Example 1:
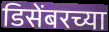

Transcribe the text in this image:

डिसेंबरच्या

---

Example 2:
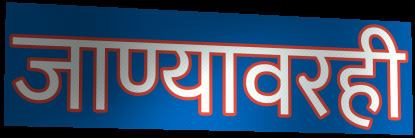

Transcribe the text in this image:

जाण्यावरही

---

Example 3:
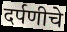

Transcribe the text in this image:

दर्पणीचे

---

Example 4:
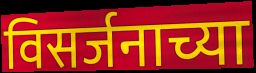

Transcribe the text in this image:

विसर्जनाच्या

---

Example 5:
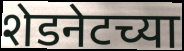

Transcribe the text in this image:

शेडनेटच्या